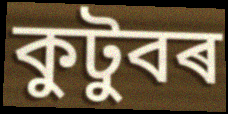
কুটুবৰ